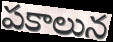
పకాలున